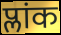
प्लांक